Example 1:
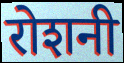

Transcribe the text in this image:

रोशनी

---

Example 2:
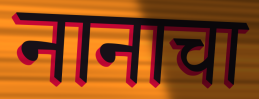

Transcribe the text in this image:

नानाचा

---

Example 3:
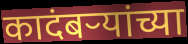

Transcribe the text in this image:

कादंबऱ्यांच्या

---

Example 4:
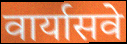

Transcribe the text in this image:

वार्यासवे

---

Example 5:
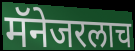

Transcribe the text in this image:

मॅनेजरलाच